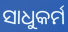
ସାଧୁକର୍ମ